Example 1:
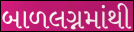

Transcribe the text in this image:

બાળલગ્નમાંથી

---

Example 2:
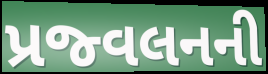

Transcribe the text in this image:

પ્રજ્વલનની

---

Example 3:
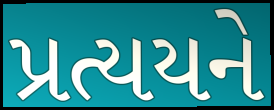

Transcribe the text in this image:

પ્રત્યયને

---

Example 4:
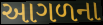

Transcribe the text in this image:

આગળના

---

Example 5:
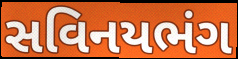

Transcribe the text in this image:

સવિનયભંગ